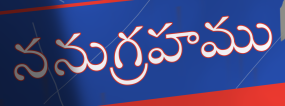
ననుగ్రహము